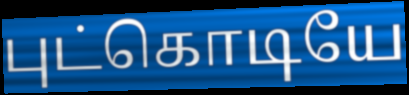
புட்கொடியே